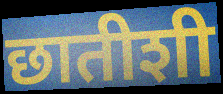
छातीशी